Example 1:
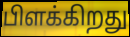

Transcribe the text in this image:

பிளக்கிறது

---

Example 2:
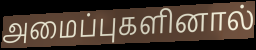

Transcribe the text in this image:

அமைப்புகளினால்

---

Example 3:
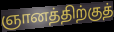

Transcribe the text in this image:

ஞானத்திற்குத்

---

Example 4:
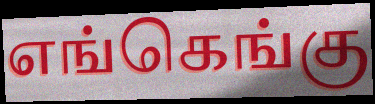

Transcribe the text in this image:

எங்கெங்கு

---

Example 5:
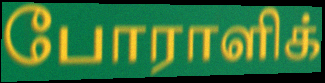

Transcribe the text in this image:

போராளிக்